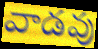
వాడవు